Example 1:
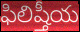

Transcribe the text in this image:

ఫిలిష్తీయ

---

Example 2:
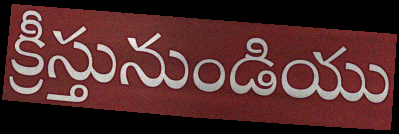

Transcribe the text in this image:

క్రీస్తునుండియు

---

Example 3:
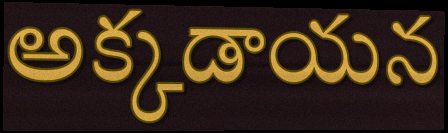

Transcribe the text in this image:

అక్కడాయన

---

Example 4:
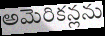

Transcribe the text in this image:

అమెరికన్లను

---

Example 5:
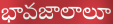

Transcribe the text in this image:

భావజాలాలూ